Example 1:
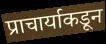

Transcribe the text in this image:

प्राचार्याकडून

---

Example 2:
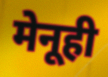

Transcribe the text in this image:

मेनूही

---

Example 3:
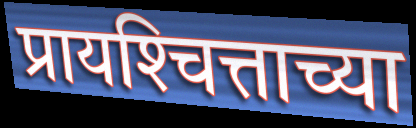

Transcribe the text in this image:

प्रायश्‍चित्ताच्या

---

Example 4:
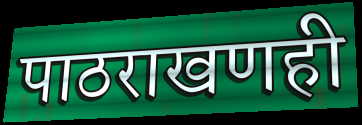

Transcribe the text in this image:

पाठराखणही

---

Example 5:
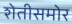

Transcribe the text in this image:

शेतीसमोर